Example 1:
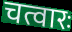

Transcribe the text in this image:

चत्वारः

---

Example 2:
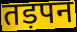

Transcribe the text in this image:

तड़पन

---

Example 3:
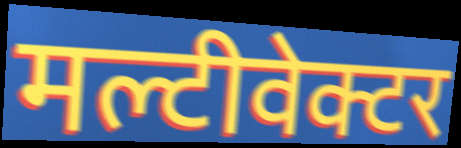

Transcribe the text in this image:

मल्टीवेक्टर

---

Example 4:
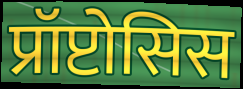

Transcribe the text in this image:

प्रॉप्टोसिस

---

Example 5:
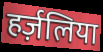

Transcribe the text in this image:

हर्ज़लिया